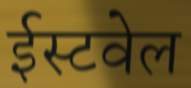
ईस्टवेल